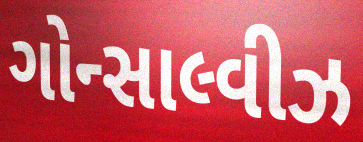
ગોન્સાલ્વીઝ